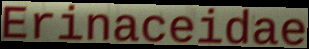
Erinaceidae